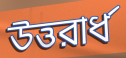
উত্তরার্ধ